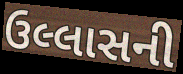
ઉલ્લાસની